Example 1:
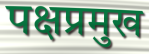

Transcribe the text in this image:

पक्षप्रमुख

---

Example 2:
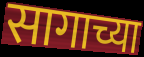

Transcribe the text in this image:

सागाच्या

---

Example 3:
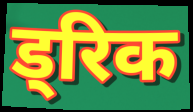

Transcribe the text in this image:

ड्रिक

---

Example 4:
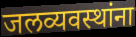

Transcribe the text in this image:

जलव्यवस्थांना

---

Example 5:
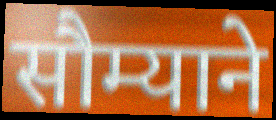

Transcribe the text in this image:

सौम्याने